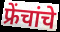
फ्रेंचांचे